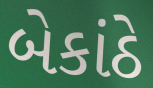
બેકાંઠે